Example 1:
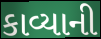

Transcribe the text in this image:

કાવ્યાની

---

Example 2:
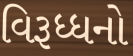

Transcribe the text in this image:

વિરૂધ્ધનો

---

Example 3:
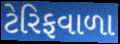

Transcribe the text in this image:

ટેરિફવાળા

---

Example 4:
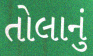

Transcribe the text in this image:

તોલાનું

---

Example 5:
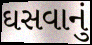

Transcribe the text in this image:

ઘસવાનું